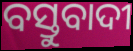
ବସ୍ତୁବାଦୀ